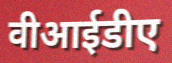
वीआईडीए